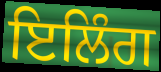
ਇਲਿੰਗ